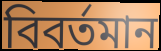
বিবর্তমান